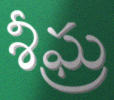
శీఘ్ర